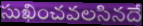
సుఖించవలసినదే